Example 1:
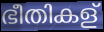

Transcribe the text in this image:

ഭീതികള്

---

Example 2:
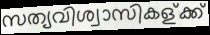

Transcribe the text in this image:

സത്യവിശ്വാസികള്ക്ക്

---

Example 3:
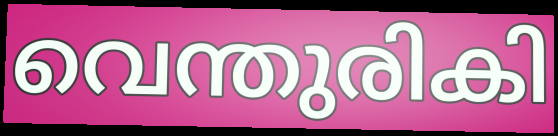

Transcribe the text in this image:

വെന്തുരികി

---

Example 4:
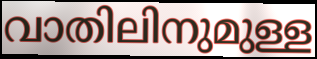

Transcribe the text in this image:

വാതിലിനുമുള്ള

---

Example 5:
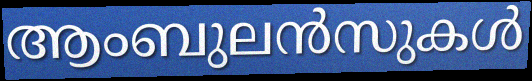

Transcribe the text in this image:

ആംബുലൻസുകൾ